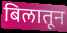
बिलातून